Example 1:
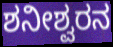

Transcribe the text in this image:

ಶನೀಶ್ವರನ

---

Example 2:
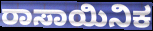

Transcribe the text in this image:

ರಾಸಾಯಿನಿಕ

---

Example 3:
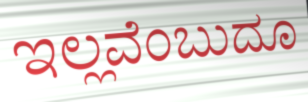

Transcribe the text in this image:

ಇಲ್ಲವೆಂಬುದೂ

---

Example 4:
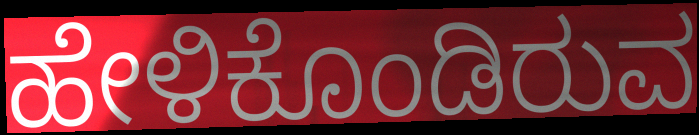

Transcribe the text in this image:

ಹೇಳಿಕೊಂಡಿರುವ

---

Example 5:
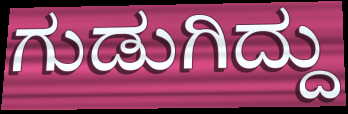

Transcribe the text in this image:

ಗುಡುಗಿದ್ದು